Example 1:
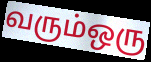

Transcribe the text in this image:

வரும்ஒரு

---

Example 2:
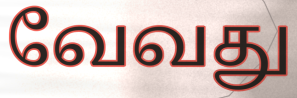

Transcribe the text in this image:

வேவது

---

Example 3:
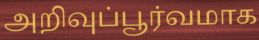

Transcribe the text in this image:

அறிவுப்பூர்வமாக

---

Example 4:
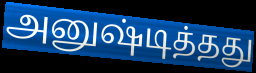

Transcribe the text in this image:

அனுஷ்டித்தது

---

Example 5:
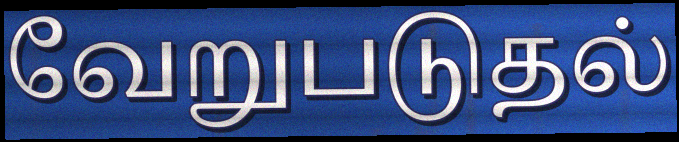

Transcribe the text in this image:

வேறுபடுதல்